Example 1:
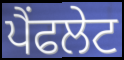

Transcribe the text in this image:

ਪੈਂਫਲੇਟ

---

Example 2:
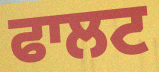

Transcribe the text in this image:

ਫਾਲਟ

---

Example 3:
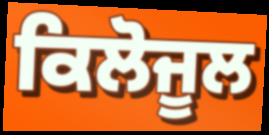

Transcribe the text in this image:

ਕਿਲੋਜੂਲ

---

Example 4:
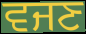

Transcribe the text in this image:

ਵਜਣ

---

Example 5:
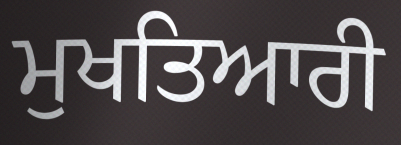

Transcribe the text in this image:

ਮੁਖਤਿਆਰੀ